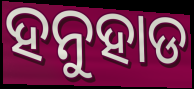
ହନୁହାଡ